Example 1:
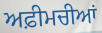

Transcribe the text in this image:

ਅਫ਼ੀਮਚੀਆਂ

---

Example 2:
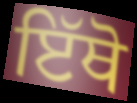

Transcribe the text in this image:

ਇੱਥੋ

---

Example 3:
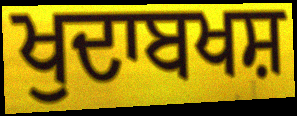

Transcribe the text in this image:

ਖੁਦਾਬਖਸ਼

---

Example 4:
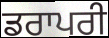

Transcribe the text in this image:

ਡਰਾਪਰੀ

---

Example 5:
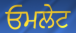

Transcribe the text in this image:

ਓਮਲੇਟ